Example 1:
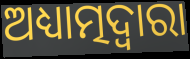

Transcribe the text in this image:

ଅଧ୍ୟାତ୍ମଦ୍ୱାରା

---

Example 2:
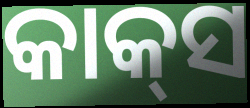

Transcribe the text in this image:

କାକ୍‌ସ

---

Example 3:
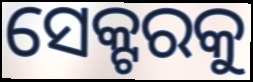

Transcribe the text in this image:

ସେକ୍ଟରକୁ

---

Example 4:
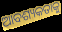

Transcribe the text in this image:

ଆବଶ୍ୟକତାକୁ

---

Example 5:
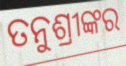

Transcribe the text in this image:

ତନୁଶ୍ରୀଙ୍କର